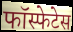
फॉस्फेटेस